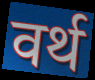
वर्थ